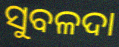
ସୁବଳଦା